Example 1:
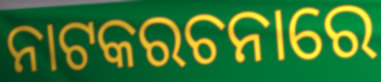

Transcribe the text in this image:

ନାଟକରଚନାରେ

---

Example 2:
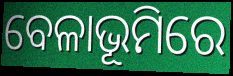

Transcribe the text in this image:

ବେଳାଭୂମିରେ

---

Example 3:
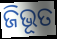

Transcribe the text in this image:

ଜିଭୂତ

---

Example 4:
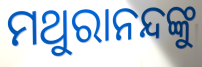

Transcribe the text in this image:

ମଥୁରାନନ୍ଦଙ୍କୁ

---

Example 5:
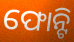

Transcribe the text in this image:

ଫୋନ୍ଟି